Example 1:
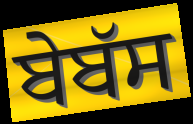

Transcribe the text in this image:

ਬੇਬੱਸ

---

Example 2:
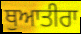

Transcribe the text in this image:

ਥੁਆਤੀਰਾ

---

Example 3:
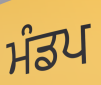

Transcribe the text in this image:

ਮੰਡਪ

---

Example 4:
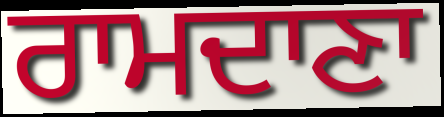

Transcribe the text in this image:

ਰਾਮਦਾਣਾ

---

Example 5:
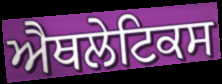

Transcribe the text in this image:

ਐਥਲੇਟਿਕਸ